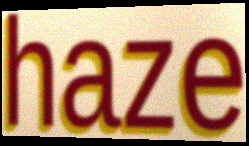
haze